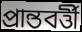
প্রান্তবর্ত্তী